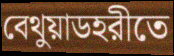
বেথুয়াডহরীতে